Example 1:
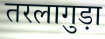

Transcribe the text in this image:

तरलागुड़ा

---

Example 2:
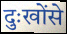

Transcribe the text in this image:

दुःखोंसे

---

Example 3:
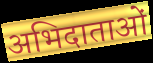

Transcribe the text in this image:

अभिदाताओं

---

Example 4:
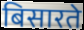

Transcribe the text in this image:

बिसारते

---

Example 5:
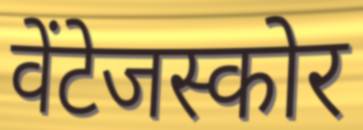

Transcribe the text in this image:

वेंटेजस्कोर